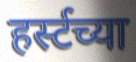
हर्स्टच्या